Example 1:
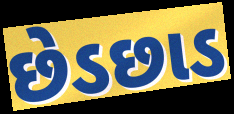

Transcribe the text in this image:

છેડછાડ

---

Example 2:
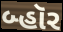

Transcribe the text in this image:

બ્હૉર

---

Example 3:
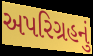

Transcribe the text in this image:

અપરિગ્રહનું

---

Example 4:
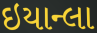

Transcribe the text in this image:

ઇયાન્લા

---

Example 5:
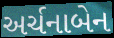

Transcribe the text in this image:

અર્ચનાબેન